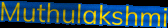
Muthulakshmi